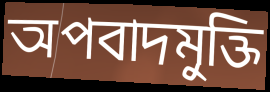
অপবাদমুক্তি